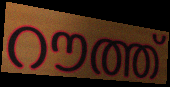
റൗത്ത്